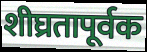
शीघ्रतापूर्वक